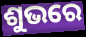
ଶୁଭରେ